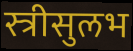
स्त्रीसुलभ